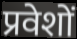
प्रवेशों